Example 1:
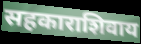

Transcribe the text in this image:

सहकाराशिवाय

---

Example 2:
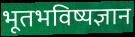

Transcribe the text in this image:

भूतभविष्यज्ञान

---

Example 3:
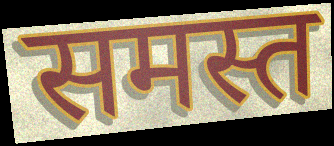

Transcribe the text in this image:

समस्त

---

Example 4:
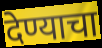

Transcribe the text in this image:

देण्याचा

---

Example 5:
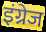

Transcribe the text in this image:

इंग्रेज